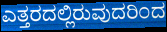
ಎತ್ತರದಲ್ಲಿರುವುದರಿಂದ